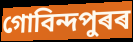
গোবিন্দপুৰৰ